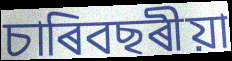
চাৰিবছৰীয়া